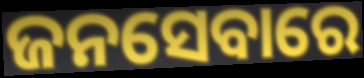
ଜନସେବାରେ